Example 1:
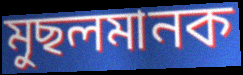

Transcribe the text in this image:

মুছলমানক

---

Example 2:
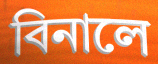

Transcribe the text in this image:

বিনালে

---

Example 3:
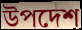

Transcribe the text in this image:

উপদেশ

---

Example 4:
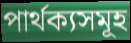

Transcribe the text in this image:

পাৰ্থক্যসমূহ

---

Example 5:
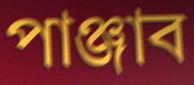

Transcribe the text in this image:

পাঞ্জাব